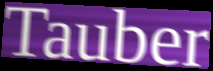
Tauber